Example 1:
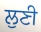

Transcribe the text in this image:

ਲੁਣੀ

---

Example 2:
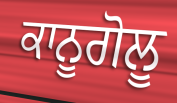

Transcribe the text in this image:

ਕਾਨੂਗੋਲੂ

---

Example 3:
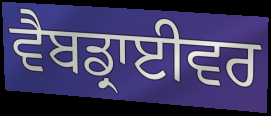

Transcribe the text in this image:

ਵੈਬਡ੍ਰਾਈਵਰ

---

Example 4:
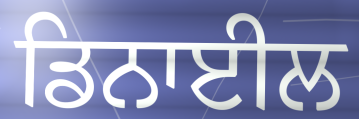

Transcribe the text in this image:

ਡਿਨਾਈਲ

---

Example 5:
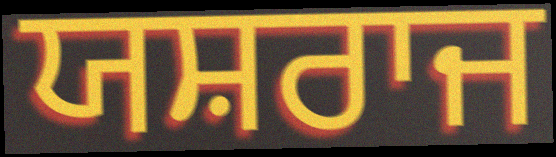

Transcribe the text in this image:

ਯਸ਼ਰਾਜ